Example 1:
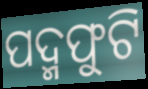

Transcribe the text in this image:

ପଦ୍ମଫୁଟି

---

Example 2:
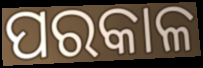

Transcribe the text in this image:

ପରକାଳ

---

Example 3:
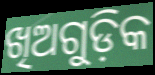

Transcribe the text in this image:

ଖିଅଗୁଡ଼ିକ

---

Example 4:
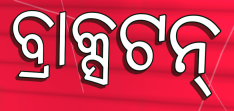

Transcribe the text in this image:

ବ୍ରାକ୍ସଟନ୍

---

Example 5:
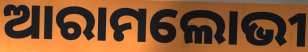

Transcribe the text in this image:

ଆରାମଲୋଭୀ